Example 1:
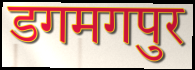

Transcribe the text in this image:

डगमगपुर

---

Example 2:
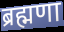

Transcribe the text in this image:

ब्रह्मणा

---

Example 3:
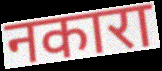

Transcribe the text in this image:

नकारा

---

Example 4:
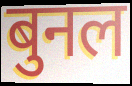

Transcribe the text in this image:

बुनल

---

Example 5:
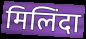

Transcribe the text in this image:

मिलिंदा